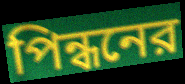
পিন্ধনের